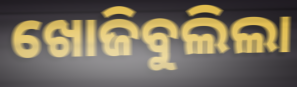
ଖୋଜିବୁଲିଲା